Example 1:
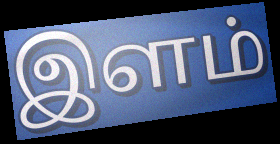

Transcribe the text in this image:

இளம்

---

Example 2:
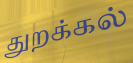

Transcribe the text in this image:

துறக்கல்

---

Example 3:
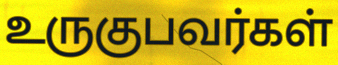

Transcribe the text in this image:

உருகுபவர்கள்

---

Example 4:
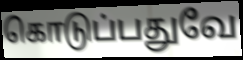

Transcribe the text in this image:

கொடுப்பதுவே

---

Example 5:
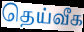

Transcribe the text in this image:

தெய்வீக